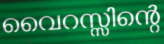
വൈറസ്സിന്റെ